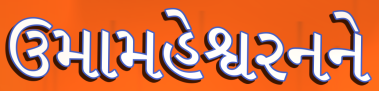
ઉમામહેશ્વરનને